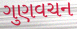
ગુણવચન